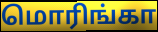
மொரிங்கா